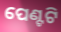
ପେଣ୍ଟଟି